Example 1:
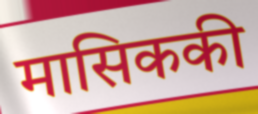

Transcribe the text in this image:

मासिककी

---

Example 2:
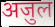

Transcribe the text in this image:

अजुल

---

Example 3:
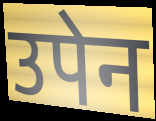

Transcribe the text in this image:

उपेन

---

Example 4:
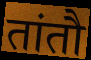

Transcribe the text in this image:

तांतौ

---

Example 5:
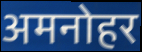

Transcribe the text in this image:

अमनोहर